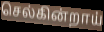
செல்கின்றாய்